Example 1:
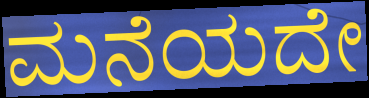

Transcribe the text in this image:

ಮನೆಯದೇ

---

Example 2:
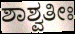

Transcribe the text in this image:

ಶಾಶ್ವತೀಃ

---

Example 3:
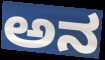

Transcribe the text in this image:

ಅನ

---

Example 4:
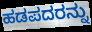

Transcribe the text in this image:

ಹಡಪದರನ್ನು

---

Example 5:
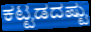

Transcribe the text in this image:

ಕಟ್ಟಡದಷ್ಟು